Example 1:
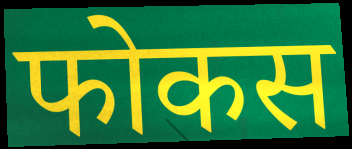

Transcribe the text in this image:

फोकस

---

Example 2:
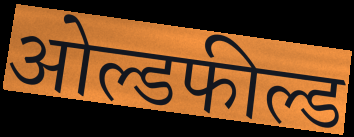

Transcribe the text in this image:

ओल्डफील्ड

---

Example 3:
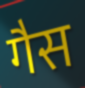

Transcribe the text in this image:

गैस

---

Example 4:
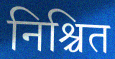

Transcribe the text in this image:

निश्चित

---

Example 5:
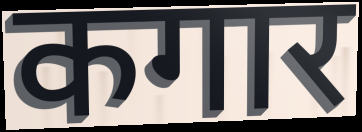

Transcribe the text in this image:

कगार